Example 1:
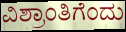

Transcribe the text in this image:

ವಿಶ್ರಾಂತಿಗೆಂದು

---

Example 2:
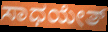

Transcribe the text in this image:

ಸಾಧಯೇತ್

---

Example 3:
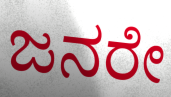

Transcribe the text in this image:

ಜನರೇ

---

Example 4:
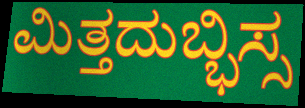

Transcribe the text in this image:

ಮಿತ್ತದುಬ್ಭಿಸ್ಸ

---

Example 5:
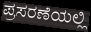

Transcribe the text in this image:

ಪ್ರಸರಣೆಯಲ್ಲಿ